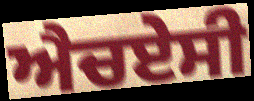
ਐਚਏਸੀ